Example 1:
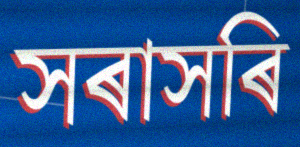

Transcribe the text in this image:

সৰাসৰি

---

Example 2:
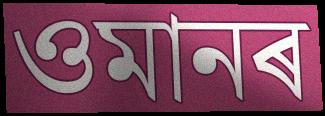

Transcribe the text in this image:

ওমানৰ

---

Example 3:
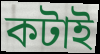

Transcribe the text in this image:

কটাই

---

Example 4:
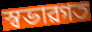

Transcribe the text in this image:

স্বভাৱগত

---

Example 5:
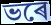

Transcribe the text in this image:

ভৰে